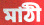
মাঠী